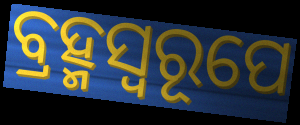
ବ୍ରହ୍ମସ୍ୱରୂପେ